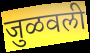
जुळवली